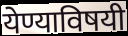
येण्याविषयी